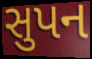
સુપન